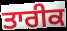
ਤਾਰੀਕ